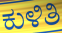
ಕುಳಿತಿ